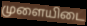
முளையிடை